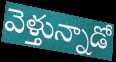
వెళ్తున్నాడో